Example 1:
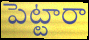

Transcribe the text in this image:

పెట్టారా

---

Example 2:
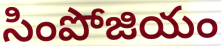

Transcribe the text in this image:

సింపోజియం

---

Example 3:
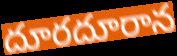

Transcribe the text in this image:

దూరదూరాన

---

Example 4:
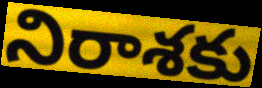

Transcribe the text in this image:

నిరాశకు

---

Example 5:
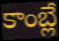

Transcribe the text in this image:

కాంబ్లే